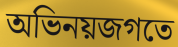
অভিনয়জগতে